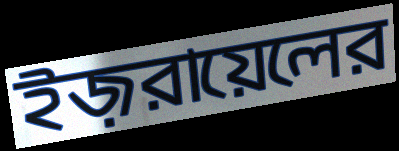
ইজ়রায়েলের